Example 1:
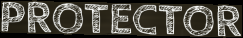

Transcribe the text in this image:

PROTECTOR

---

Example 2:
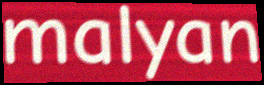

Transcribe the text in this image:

malyan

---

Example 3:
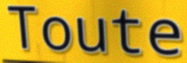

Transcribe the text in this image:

Toute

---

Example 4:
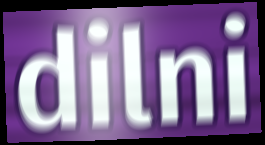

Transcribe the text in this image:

dilni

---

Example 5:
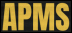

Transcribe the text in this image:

APMS